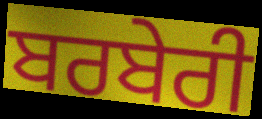
ਬਰਬੇਰੀ